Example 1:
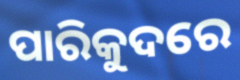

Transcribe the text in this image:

ପାରିକୁଦରେ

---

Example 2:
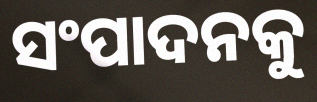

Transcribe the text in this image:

ସଂପାଦନକୁ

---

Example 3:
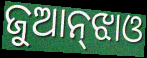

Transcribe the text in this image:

ଜୁଆନ୍‌ଝାଓ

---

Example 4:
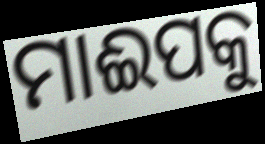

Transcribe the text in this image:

ମାଈପକୁ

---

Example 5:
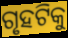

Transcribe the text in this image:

ଗୃହଟିକୁ